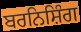
ਬਰਨਿਸ਼ਿੰਗ